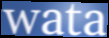
wata